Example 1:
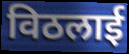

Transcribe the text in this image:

विठलाई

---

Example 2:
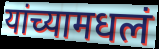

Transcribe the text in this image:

यांच्यामधलं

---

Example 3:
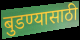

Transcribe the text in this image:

बुडण्यासाठी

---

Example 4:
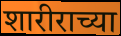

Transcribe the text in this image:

शारीराच्या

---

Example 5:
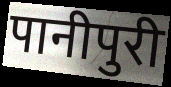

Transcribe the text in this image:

पानीपुरी